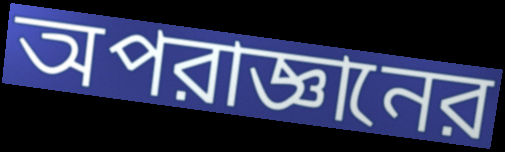
অপরাজ্ঞানের